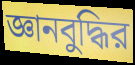
জ্ঞানবুদ্ধির